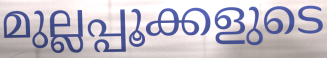
മുല്ലപ്പൂക്കളുടെ